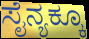
ಸೈನ್ಯಕ್ಕೂ